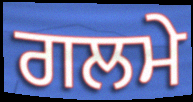
ਗਲਮੇ